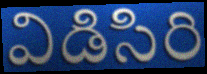
విడిసిరి